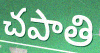
చపాతి